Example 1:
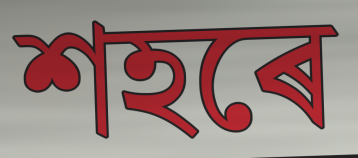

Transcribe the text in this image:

শহৰে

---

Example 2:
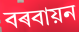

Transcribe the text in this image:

বৰবায়ন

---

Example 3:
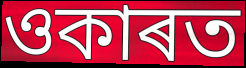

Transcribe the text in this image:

ওকাৰত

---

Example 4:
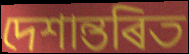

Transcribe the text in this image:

দেশান্তৰিত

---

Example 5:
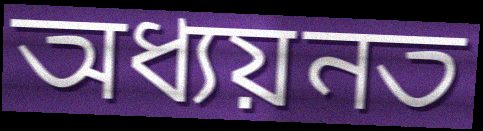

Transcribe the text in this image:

অধ্যয়নত